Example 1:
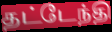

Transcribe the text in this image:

தட்டேந்தி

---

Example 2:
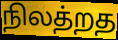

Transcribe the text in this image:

நிலத்றத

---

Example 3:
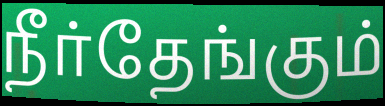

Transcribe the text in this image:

நீர்தேங்கும்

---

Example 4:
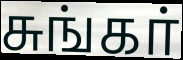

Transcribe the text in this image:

சுங்கர்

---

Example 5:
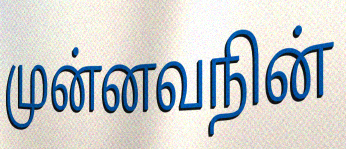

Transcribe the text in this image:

முன்னவநின்